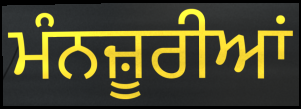
ਮੰਨਜ਼ੂਰੀਆਂ